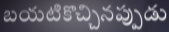
బయటికొచ్చినప్పుడు